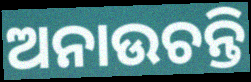
ଅନାଉଚନ୍ତି